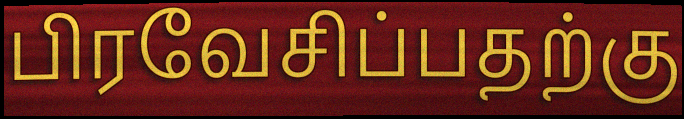
பிரவேசிப்பதற்கு